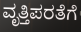
ವೃತ್ತಿಪರತೆಗೆ